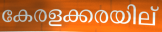
കേരളക്കരയില്